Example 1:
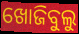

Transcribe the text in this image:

ଖୋଜିବୁଲୁ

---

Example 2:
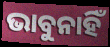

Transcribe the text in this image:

ଭାବୁନାହିଁ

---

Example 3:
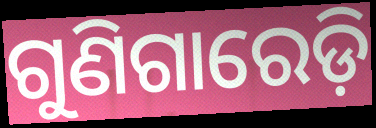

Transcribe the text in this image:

ଗୁଣିଗାରେଡ଼ି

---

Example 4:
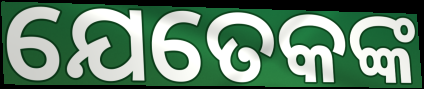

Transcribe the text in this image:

ଯେତେକଙ୍କ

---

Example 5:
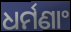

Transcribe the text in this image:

ଧର୍ମଣାଂ